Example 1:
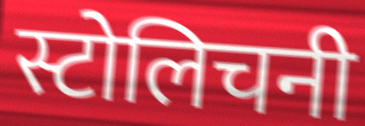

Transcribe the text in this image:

स्टोलिचनी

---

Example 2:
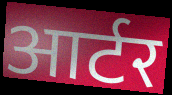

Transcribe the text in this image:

आर्टर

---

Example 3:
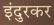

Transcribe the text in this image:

इंदुरकर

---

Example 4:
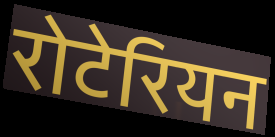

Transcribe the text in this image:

रोटेरियन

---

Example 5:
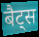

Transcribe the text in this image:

बैट्स